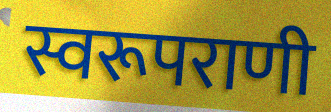
स्वरूपराणी